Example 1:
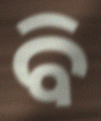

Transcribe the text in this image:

ବି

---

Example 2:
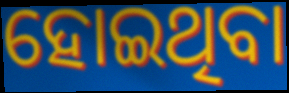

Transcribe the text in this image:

ହୋଇଥିବା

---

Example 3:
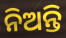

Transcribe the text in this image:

ନିଅନ୍ତି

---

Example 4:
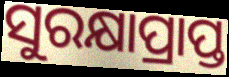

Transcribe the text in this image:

ସୁରକ୍ଷାପ୍ରାପ୍ତ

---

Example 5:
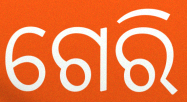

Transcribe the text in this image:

ଗେରି